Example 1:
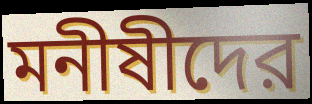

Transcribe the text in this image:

মনীষীদের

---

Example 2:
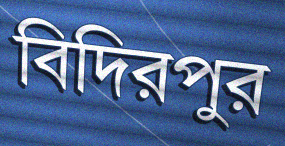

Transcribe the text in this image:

বিদিরপুর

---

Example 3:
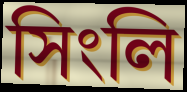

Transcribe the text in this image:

সিংলি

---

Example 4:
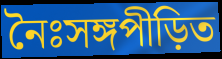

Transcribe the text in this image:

নৈঃসঙ্গপীড়িত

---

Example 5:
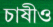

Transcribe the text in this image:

চাষীও